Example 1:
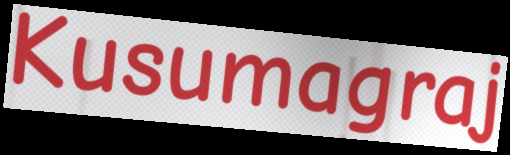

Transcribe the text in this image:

Kusumagraj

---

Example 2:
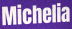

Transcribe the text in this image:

Michelia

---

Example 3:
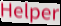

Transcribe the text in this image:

Helper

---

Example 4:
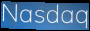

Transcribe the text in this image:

Nasdaq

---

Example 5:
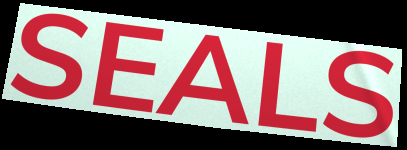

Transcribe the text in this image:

SEALS